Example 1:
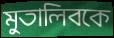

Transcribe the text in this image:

মুতালিবকে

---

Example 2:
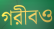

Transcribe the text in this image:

গরীবও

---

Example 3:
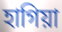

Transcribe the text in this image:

হাগিয়া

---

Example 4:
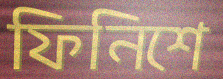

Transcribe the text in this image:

ফিনিশে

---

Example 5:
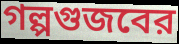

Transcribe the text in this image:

গল্পগুজবের